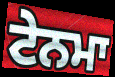
ਟੇਨਮਾ